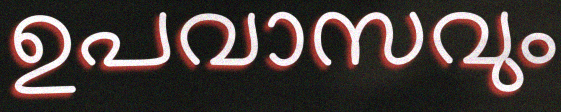
ഉപവാസവും